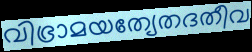
വിഭ്രാമയത്യേതദതീവ